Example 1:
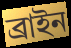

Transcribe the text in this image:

ব্রাইন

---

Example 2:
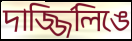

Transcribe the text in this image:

দার্জ্জিলিঙে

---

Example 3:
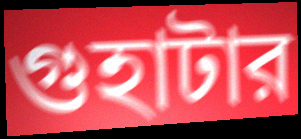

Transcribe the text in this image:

গুহাটার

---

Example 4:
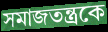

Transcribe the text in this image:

সমাজতন্ত্রকে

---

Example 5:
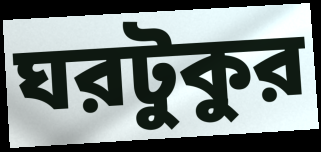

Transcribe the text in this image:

ঘরটুকুর